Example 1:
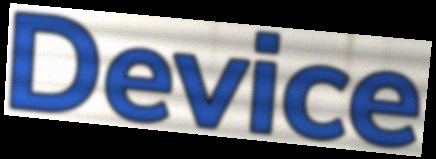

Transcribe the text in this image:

Device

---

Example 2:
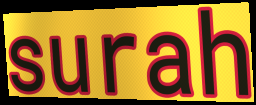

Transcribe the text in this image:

surah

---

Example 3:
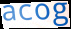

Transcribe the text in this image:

acog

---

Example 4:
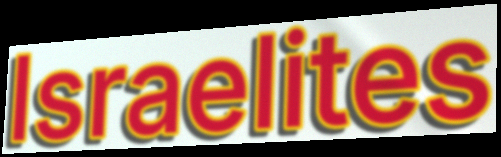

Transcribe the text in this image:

Israelites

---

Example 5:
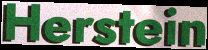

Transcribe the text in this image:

Herstein